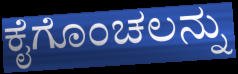
ಕೈಗೊಂಚಲನ್ನು